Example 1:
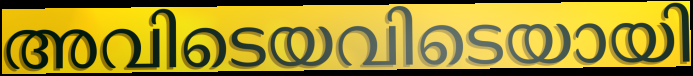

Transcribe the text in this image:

അവിടെയവിടെയായി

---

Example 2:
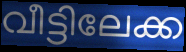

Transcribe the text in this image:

വീട്ടിലേക്ക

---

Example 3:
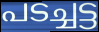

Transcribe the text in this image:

പടച്ചട്ട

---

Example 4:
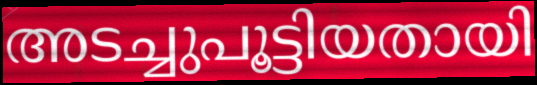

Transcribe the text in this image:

അടച്ചുപൂട്ടിയതായി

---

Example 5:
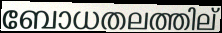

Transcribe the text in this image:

ബോധതലത്തില്